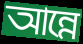
আন্নে